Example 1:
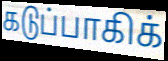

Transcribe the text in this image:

கடுப்பாகிக்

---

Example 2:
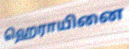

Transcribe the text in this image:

ஹெராயினை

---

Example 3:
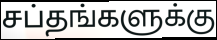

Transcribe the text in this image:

சப்தங்களுக்கு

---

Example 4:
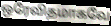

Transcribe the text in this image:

ஒரேவிதமாகவே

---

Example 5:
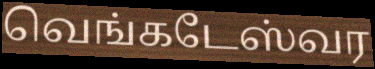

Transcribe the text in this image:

வெங்கடேஸ்வர